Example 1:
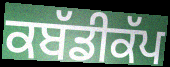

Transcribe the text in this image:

ਕਬੱਡੀਕੱਪ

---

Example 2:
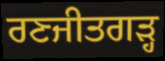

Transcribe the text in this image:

ਰਣਜੀਤਗੜ੍ਹ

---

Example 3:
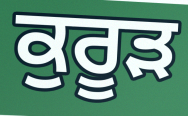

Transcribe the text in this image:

ਕੁਰੂੜ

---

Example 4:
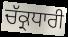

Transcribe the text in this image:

ਚੱਕ੍ਰਧਾਰੀ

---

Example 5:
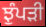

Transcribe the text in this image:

ਝੁੰਪੜੀ